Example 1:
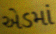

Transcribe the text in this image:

એડમાં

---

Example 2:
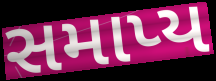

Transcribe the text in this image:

સમાપ્ય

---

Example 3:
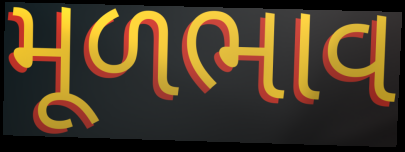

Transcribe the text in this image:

મૂળભાવ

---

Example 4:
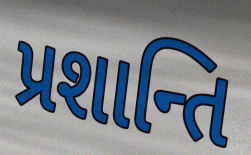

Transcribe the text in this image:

પ્રશાન્તિ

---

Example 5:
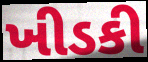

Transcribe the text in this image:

ખીડકી